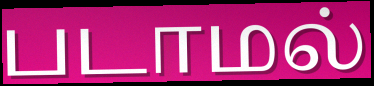
படாமல்